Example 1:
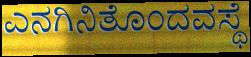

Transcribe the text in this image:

ಎನಗಿನಿತೊಂದವಸ್ಥೆ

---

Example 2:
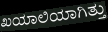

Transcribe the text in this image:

ಖಯಾಲಿಯಾಗಿತ್ತು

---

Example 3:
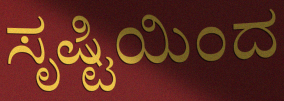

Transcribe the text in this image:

ಸೃಷ್ಟಿಯಿಂದ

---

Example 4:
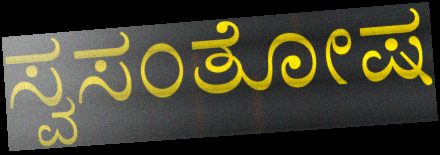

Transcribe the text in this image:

ಸ್ವಸಂತೋಷ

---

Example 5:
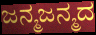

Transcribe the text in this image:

ಜನ್ಮಜನ್ಮದ